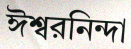
ঈশ্বরনিন্দা